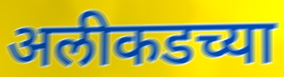
अलीकडच्या